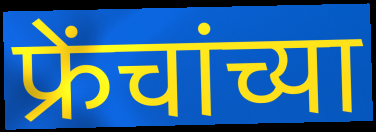
फ्रेंचांच्या